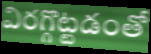
విరగ్గొట్టడంతో